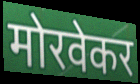
मोरवेकर